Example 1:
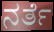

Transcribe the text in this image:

ನರ್ತೆ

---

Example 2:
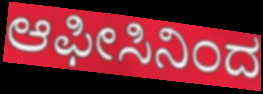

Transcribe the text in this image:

ಆಫೀಸಿನಿಂದ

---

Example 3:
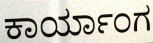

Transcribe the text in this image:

ಕಾರ್ಯಾಂಗ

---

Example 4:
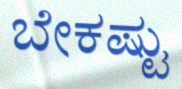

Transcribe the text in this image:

ಬೇಕಷ್ಟು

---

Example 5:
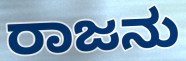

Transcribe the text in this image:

ರಾಜನು